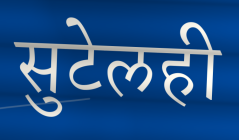
सुटेलही